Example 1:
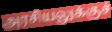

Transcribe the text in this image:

அரசியலுக்குச்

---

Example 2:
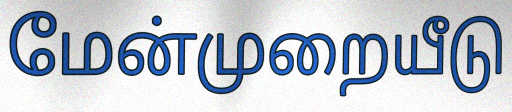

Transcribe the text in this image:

மேன்முறையீடு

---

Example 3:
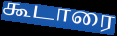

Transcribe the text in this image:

கூடாரை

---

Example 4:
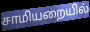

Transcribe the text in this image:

சாமியறையில்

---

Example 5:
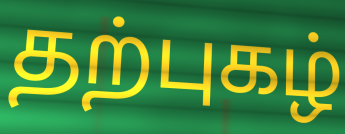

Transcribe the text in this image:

தற்புகழ்